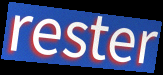
rester